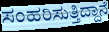
ಸಂಹರಿಸುತ್ತಿದ್ದಾನೆ